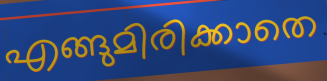
എങ്ങുമിരിക്കാതെ